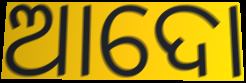
ଆଦୋ